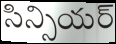
సిన్సియర్